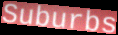
Suburbs